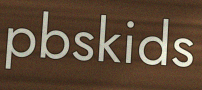
pbskids